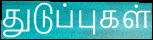
துடுப்புகள்